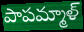
పాపమ్మాళ్